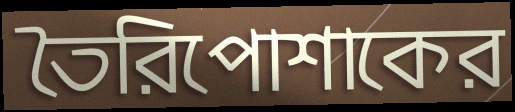
তৈরিপোশাকের